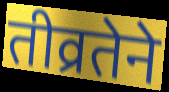
तीव्रतेने